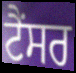
ਟੈਂਸਰ